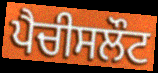
ਪੈਚੀਸਲੌਟ